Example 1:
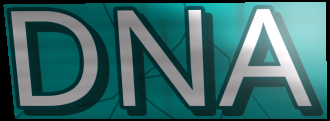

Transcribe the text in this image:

DNA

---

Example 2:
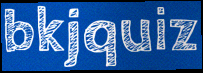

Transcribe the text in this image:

bkjquiz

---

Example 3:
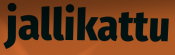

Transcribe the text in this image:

jallikattu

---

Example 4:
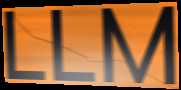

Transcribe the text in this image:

LLM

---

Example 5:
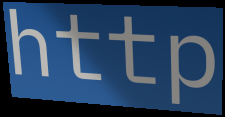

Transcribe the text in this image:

http